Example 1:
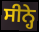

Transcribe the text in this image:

ਸੀਨ੍ਹੇ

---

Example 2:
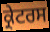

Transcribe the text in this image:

ਕ੍ਰੇਟਰਸ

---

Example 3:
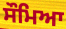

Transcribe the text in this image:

ਸੌਮਿਆ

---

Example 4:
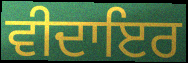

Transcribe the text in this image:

ਵੀਦਾਇਰ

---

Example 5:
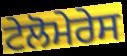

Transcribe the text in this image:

ਟੇਲੋਮੇਰੇਸ